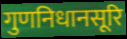
गुणनिधानसूरि